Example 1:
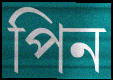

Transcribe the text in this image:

পিন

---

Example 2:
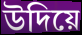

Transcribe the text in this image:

উদিয়ে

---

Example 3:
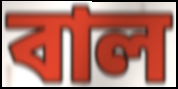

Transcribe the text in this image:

বাল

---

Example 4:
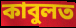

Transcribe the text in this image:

কাবুলত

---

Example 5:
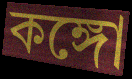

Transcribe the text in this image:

কঙ্গো